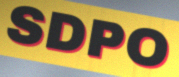
SDPO